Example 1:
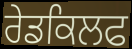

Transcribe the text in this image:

ਰੇਡਕਿਲਫ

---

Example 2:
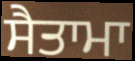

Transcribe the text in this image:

ਸੈਤਾਮਾ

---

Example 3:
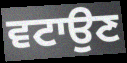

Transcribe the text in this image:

ਵਟਾਉਣ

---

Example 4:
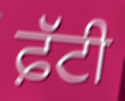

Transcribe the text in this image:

ਫ਼ੱਟੀ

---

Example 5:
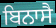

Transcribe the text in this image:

ਬਿਨਾਸੈ